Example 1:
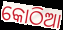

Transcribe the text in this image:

କୋଠିଆ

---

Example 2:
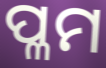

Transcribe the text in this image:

ପ୍ଳମ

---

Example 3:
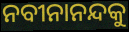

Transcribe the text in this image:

ନବୀନାନନ୍ଦକୁ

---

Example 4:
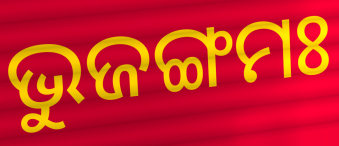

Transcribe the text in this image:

ଭୁଜଙ୍ଗମଃ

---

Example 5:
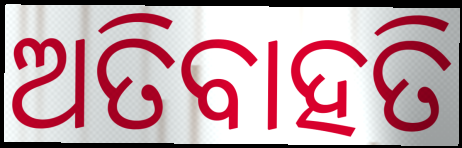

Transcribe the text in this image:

ଅତିବାହତି